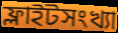
ফ্লাইটসংখ্যা